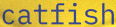
catfish